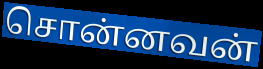
சொன்னவன்